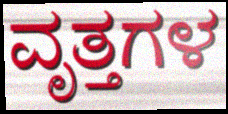
ವೃತ್ತಗಳ